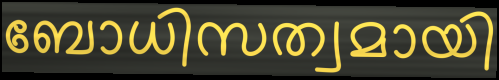
ബോധിസത്വമായി